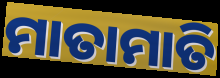
ମାତାମାତି